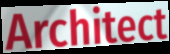
Architect